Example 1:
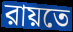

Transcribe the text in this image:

রায়তে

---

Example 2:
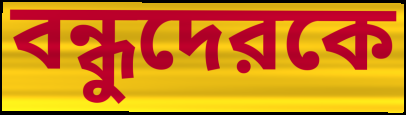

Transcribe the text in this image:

বন্ধুদেরকে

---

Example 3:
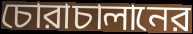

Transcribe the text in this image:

চোরাচালানের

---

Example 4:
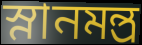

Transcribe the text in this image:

স্নানমন্ত্র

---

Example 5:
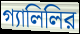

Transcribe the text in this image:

গ্যালিলির